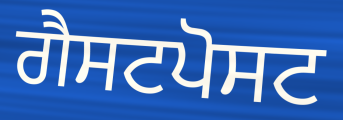
ਗੈਸਟਪੋਸਟ